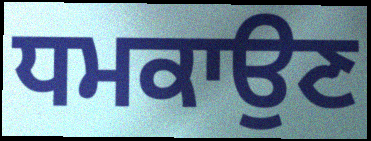
ਧਮਕਾਉਣ